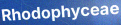
Rhodophyceae